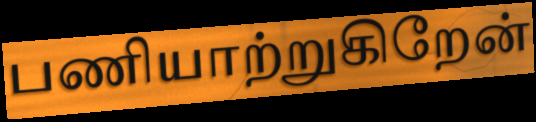
பணியாற்றுகிறேன்